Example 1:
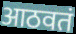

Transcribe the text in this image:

आठवतं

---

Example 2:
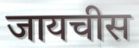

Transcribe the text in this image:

जायचीस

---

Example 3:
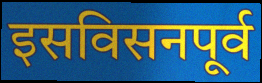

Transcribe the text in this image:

इसविसनपूर्व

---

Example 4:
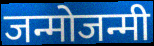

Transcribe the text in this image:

जन्मोजन्मी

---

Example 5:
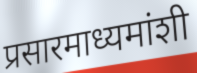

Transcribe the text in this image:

प्रसारमाध्यमांशी